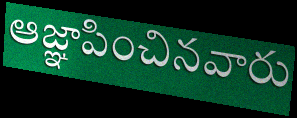
ఆజ్ఞాపించినవారు